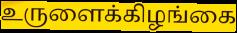
உருளைக்கிழங்கை